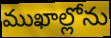
ముఖాల్లోను